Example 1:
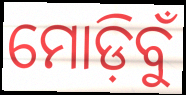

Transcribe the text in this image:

ମୋଡ଼ିବୁଁ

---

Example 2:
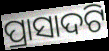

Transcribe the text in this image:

ପ୍ରାସାଦଟି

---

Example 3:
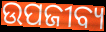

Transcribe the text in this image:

ଉପଜୀବ୍ୟ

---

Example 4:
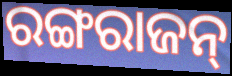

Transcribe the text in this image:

ରଙ୍ଗରାଜନ୍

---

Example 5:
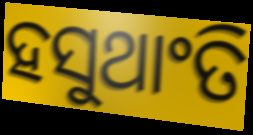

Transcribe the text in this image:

ହସୁଥାଂତି